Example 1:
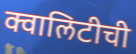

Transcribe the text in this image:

क्वालिटीची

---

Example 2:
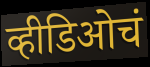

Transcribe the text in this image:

व्हीडिओचं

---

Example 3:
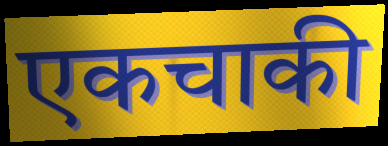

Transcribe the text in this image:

एकचाकी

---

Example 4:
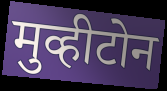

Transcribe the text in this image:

मुव्हीटोन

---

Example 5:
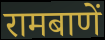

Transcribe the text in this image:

रामबाणें